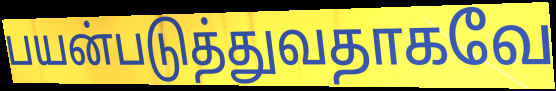
பயன்படுத்துவதாகவே